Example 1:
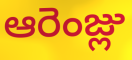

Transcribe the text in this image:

ఆరెంజ్లు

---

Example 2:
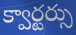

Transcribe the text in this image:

క్వార్టర్సు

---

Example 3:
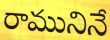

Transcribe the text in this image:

రామునినే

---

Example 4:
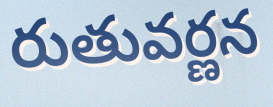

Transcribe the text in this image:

రుతువర్ణన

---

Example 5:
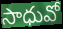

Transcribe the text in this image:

సాధువో